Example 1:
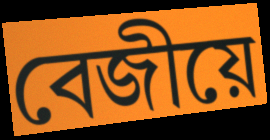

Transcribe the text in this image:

বেজীয়ে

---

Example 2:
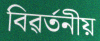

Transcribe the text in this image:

বিৱৰ্তনীয়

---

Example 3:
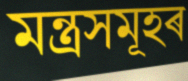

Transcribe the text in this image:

মন্ত্ৰসমূহৰ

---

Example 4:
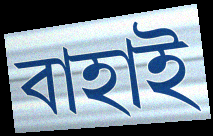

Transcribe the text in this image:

বাহাই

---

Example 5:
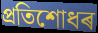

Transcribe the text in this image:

প্ৰতিশোধৰ